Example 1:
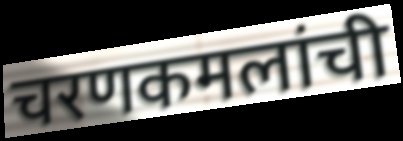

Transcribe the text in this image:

चरणकमलांची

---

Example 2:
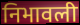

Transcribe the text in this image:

निभावली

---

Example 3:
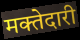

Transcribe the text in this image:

मक्तेदारी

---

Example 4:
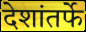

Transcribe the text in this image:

देशांतर्फे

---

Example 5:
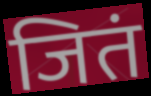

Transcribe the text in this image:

जितं